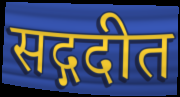
सद्गदीत